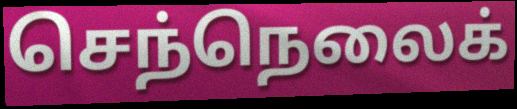
செந்நெலைக்